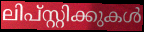
ലിപ്സ്റ്റിക്കുകൾ